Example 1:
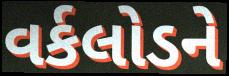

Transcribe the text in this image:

વર્કલોડને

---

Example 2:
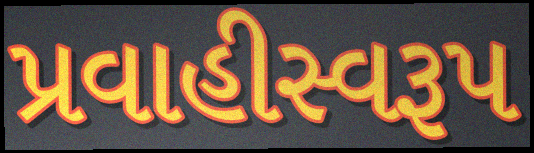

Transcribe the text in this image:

પ્રવાહીસ્વરૂપ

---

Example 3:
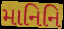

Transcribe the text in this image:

માનિનિ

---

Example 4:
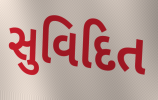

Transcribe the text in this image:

સુવિદિત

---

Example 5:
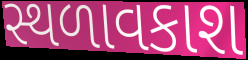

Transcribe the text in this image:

સ્થળાવકાશ